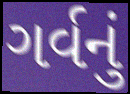
ગર્વનું